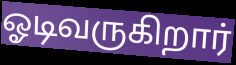
ஓடிவருகிறார்